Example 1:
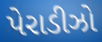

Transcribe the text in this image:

પેરાડીઝો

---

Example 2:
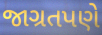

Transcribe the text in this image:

જાગ્રતપણે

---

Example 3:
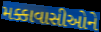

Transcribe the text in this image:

મક્કાવાસીઓને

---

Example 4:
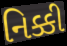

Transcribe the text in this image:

નિક્કી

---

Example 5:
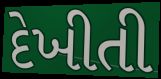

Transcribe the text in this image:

દેખીતી